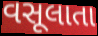
વસૂલાતા